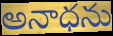
అనాధను